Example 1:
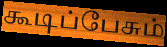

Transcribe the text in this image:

கூடிப்பேசும்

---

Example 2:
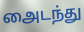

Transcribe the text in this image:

அைடந்து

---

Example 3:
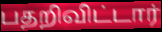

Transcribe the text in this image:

பதறிவிட்டார்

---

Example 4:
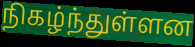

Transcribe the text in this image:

நிகழ்ந்துள்ளன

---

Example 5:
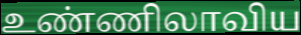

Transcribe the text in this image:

உண்ணிலாவிய